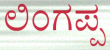
ಲಿಂಗಪ್ಪ